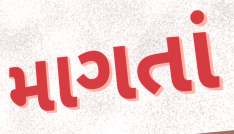
માગતાં